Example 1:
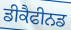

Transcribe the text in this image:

ਡੀਕੈਫੀਨਡ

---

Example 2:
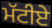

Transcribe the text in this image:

ਮੱਟੀਏ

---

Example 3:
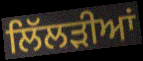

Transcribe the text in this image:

ਲਿੱਲੜੀਆਂ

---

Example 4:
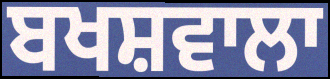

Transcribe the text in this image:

ਬਖਸ਼ਵਾਲਾ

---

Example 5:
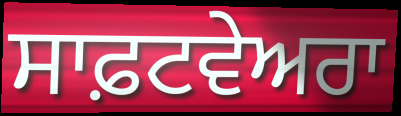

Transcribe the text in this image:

ਸਾਫ਼ਟਵੇਅਰਾ